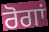
ਰੋਗਾਂ